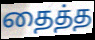
தைத்த